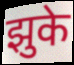
झुके